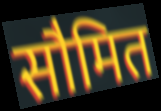
सौमित